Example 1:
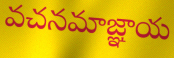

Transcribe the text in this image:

వచనమాజ్ఞాయ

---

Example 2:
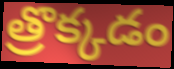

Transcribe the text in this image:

త్రొక్కడం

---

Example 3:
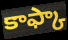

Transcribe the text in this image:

కాఫ్కా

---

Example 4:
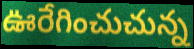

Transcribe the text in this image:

ఊరేగించుచున్న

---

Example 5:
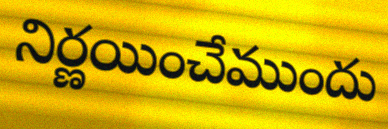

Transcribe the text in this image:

నిర్ణయించేముందు